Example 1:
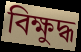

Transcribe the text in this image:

বিক্ষুদ্ধ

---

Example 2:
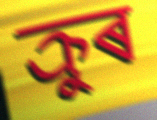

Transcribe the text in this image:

ক্ৰুৰ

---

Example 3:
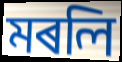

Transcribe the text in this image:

মৰলি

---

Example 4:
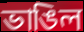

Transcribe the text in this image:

ভাঙিল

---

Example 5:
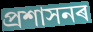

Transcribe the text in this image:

প্ৰশাসনৰ